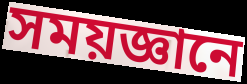
সময়জ্ঞানে